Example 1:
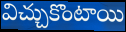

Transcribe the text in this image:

విచ్చుకొంటాయి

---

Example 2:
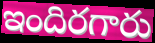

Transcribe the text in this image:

ఇందిరగారు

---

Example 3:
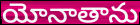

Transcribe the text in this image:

యోనాతాను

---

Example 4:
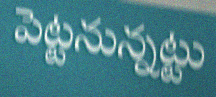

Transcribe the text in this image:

పెట్టనున్నట్టు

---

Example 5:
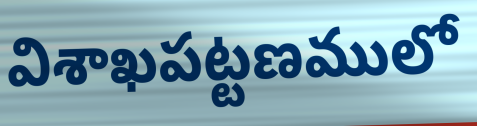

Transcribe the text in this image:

విశాఖపట్టణములో